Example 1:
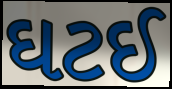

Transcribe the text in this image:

ઘટઈ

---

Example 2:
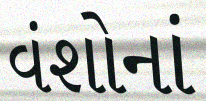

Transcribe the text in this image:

વંશોનાં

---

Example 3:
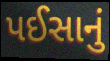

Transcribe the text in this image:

પઈસાનું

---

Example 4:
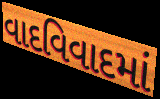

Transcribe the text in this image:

વાદવિવાદમાં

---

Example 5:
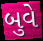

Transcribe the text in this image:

બુવે